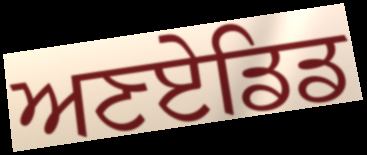
ਅਣਏਡਿਡ